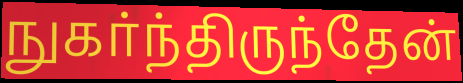
நுகர்ந்திருந்தேன்